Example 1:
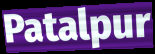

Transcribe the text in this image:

Patalpur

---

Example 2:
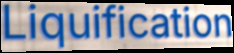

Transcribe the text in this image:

Liquification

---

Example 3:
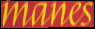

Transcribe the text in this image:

manes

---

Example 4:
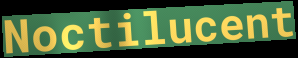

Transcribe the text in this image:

Noctilucent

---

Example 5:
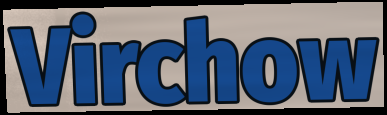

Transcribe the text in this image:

Virchow